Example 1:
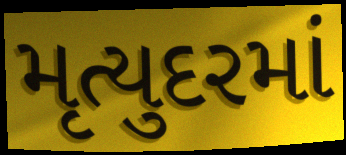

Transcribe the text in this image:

મૃત્યુદરમાં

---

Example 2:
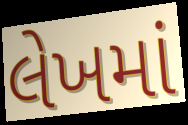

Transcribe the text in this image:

લેખમાં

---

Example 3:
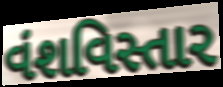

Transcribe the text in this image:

વંશવિસ્તાર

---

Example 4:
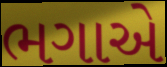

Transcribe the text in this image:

ભગાએ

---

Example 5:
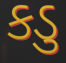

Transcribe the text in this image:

કડુ